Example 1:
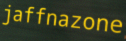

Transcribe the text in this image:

jaffnazone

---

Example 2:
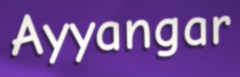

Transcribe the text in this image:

Ayyangar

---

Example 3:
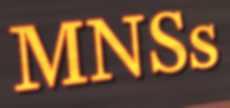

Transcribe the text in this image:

MNSs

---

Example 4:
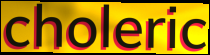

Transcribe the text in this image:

choleric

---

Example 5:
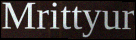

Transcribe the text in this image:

Mrittyur